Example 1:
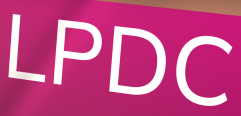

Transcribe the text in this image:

LPDC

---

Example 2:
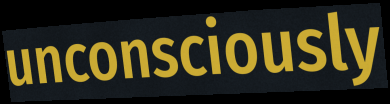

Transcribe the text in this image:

unconsciously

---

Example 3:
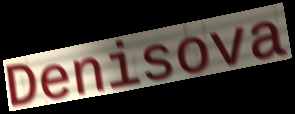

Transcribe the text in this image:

Denisova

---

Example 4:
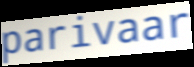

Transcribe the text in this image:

parivaar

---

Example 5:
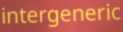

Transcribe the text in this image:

intergeneric